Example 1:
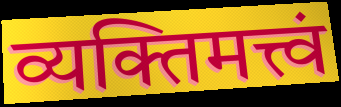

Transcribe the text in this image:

व्यक्तिमत्त्वं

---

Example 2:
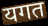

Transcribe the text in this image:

यगत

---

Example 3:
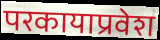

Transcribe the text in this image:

परकायाप्रवेश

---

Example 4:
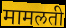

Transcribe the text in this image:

मामलती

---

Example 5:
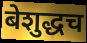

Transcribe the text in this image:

बेशुद्धच